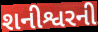
શનીશ્વરની